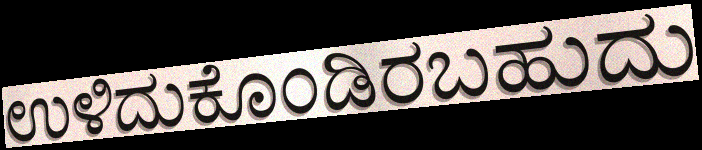
ಉಳಿದುಕೊಂಡಿರಬಹುದು